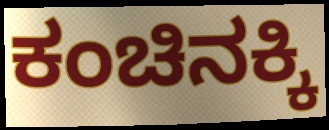
ಕಂಚಿನಕ್ಕಿ